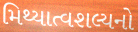
મિથ્યાત્વશલ્યનો